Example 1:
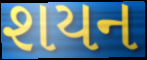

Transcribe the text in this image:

શયન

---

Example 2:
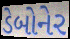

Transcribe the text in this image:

ડેબોનેર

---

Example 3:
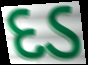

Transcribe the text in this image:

દડ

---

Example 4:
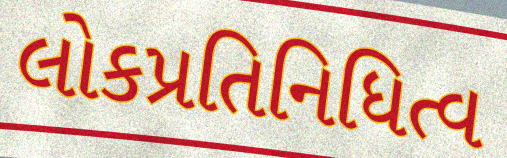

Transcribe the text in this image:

લોકપ્રતિનિધિત્વ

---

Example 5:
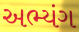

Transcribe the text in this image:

અભ્યંગ